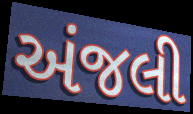
અંજલી